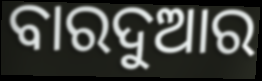
ବାରଦୁଆର